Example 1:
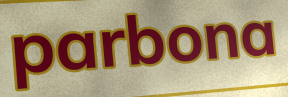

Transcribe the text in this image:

parbona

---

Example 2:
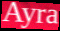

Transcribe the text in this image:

Ayra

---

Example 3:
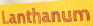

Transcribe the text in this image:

Lanthanum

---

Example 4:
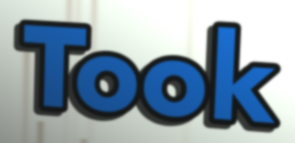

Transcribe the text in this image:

Took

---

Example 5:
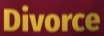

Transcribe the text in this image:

Divorce